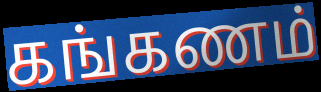
கங்கணம்